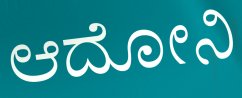
ಆದೋನಿ